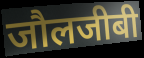
जौलजीबी